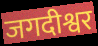
जगदीश्वर